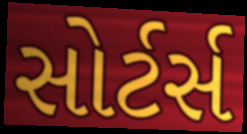
સોર્ટર્સ